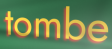
tombe